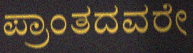
ಪ್ರಾಂತದವರೇ